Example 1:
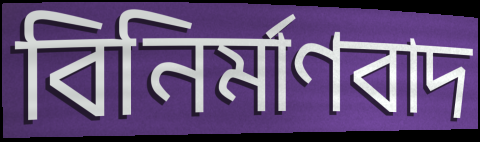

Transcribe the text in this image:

বিনিৰ্মাণবাদ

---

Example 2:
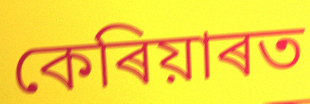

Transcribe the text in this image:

কেৰিয়াৰত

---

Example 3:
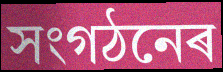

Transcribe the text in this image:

সংগঠনেৰ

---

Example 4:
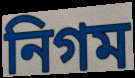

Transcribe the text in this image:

নিগম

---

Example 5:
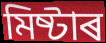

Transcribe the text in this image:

মিষ্টাৰ